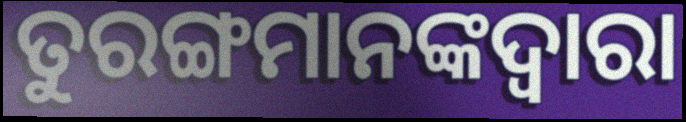
ତୁରଙ୍ଗମାନଙ୍କଦ୍ୱାରା